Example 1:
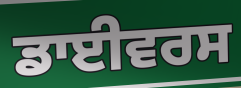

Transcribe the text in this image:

ਡਾਈਵਰਸ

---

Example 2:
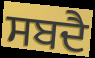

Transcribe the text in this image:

ਸਬਦੈ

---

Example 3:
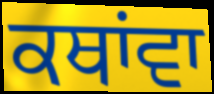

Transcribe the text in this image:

ਕਥਾਂਵਾ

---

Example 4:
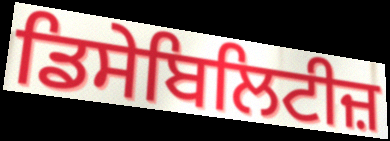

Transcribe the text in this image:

ਡਿਸੇਬਿਲਿਟੀਜ਼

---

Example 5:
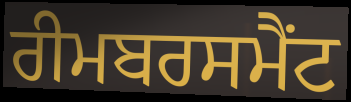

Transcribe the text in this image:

ਰੀਮਬਰਸਮੈਂਟ